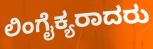
ಲಿಂಗೈಕ್ಯರಾದರು